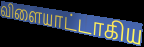
விளையாட்டாகிய